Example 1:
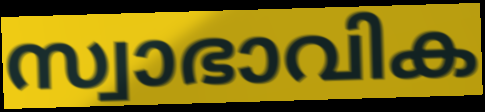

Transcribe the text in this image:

സ്വാഭാവിക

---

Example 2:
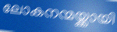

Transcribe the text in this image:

ലോകനന്മയ്ക്കായി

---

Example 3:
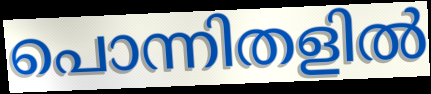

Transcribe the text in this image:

പൊന്നിതളിൽ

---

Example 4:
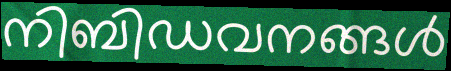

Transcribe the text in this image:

നിബിഡവനങ്ങൾ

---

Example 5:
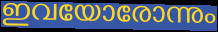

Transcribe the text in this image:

ഇവയോരോന്നും